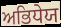
ਅਭਿਧੇਯ